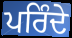
ਪਰਿੰਦੇ